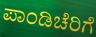
ಪಾಂಡಿಚೆರಿಗೆ